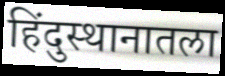
हिंदुस्थानातला